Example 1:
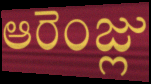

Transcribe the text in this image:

ఆరెంజ్లు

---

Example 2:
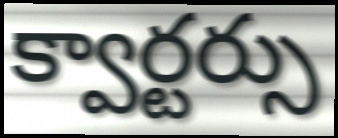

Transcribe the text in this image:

క్వార్టర్సు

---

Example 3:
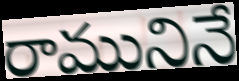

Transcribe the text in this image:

రామునినే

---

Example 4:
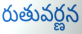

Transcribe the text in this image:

రుతువర్ణన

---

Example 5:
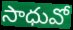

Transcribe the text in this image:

సాధువో